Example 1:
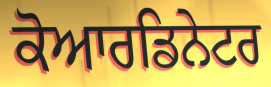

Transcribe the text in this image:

ਕੋਆਰਡਿਨੇਟਰ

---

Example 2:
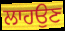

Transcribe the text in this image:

ਲਾਹਉਣ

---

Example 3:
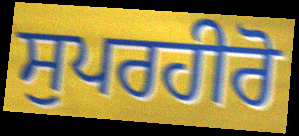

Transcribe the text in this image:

ਸੁਪਰਹੀਰੋ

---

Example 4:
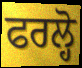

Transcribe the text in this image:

ਫਰਲ੍ਹੋ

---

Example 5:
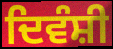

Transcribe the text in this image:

ਦਿਵੰਸ਼ੀ